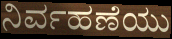
ನಿರ್ವಹಣೆಯು